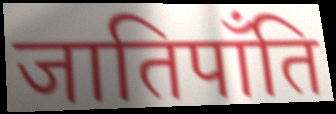
जातिपाँति